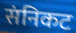
संनिकट